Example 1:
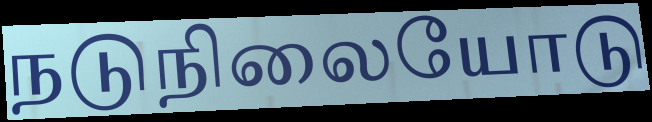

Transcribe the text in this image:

நடுநிலையோடு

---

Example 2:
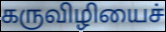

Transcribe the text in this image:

கருவிழியைச்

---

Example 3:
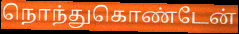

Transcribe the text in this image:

நொந்துகொண்டேன்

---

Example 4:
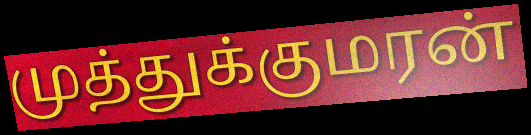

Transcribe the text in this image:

முத்துக்குமரன்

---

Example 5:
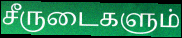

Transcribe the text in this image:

சீருடைகளும்